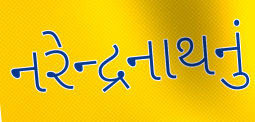
નરેન્દ્રનાથનું